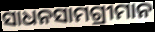
ସାଧନସାମଗ୍ରୀମାନ